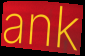
ank